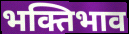
भक्तिभाव